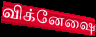
விக்னேஷை